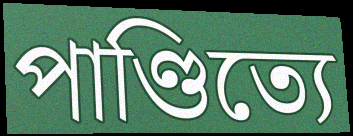
পাণ্ডিত্যে